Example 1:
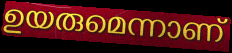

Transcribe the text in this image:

ഉയരുമെന്നാണ്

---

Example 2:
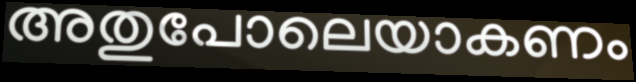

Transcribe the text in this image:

അതുപോലെയാകണം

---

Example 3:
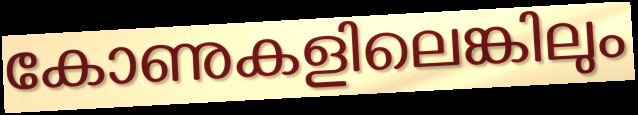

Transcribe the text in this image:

കോണുകളിലെങ്കിലും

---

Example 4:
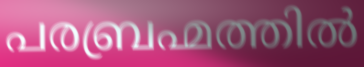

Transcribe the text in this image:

പരബ്രഹ്മത്തിൽ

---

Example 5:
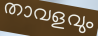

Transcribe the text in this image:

താവളവും